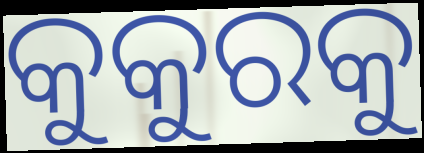
କୁକୁରକୁ